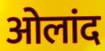
ओलांद